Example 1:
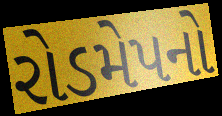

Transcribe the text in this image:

રોડમેપનો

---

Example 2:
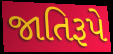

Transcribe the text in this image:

જાતિરૂપે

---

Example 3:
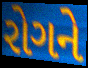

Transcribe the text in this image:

રોગને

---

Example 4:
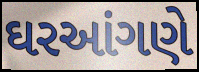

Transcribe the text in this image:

ઘરઆંગણે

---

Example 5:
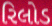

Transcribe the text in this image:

રિલોડ